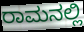
ರಾಮನಲ್ಲಿ